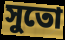
সুতো